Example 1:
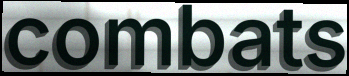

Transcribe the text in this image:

combats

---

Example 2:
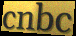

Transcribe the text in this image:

cnbc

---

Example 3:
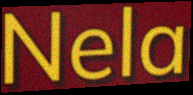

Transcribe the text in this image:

Nela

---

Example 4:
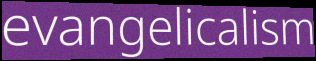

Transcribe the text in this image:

evangelicalism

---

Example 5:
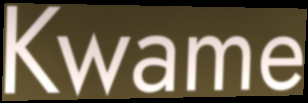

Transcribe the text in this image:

Kwame